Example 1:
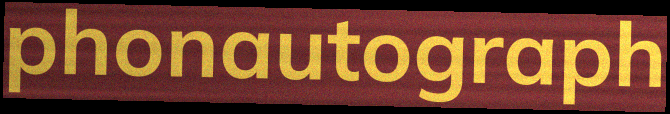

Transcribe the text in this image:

phonautograph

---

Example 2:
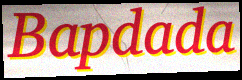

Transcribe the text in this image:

Bapdada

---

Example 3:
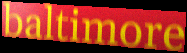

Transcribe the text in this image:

baltimore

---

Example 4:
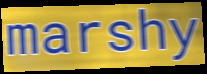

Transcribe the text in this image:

marshy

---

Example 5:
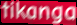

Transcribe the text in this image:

tikanga